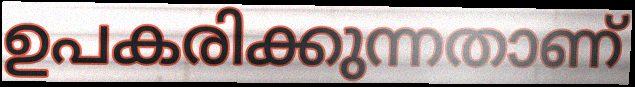
ഉപകരിക്കുന്നതാണ്